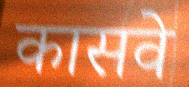
कासवे